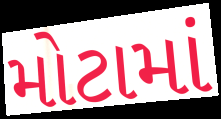
મોટામાં